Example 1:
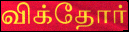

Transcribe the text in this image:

விக்தோர்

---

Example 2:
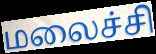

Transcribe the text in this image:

மலைச்சி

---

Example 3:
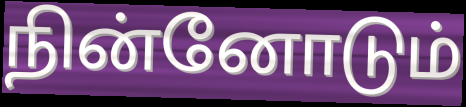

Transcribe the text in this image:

நின்னோடும்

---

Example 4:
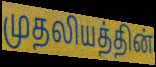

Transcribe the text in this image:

முதலியத்தின்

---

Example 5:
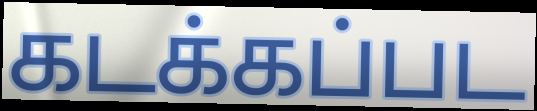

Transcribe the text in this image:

கடக்கப்பட